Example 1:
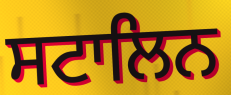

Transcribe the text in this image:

ਸਟਾਲਿਨ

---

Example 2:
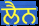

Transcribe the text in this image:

ਲੈਨ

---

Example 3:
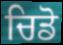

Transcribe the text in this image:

ਚਿਡੋ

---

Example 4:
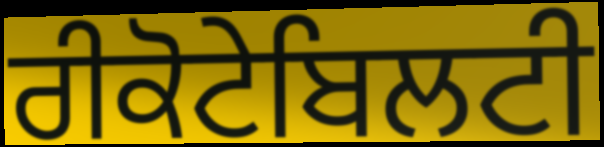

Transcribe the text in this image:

ਰੀਕੋਟੇਬਿਲਟੀ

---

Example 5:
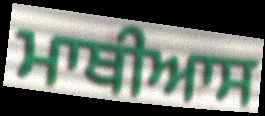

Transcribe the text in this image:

ਮਾਥੀਆਸ